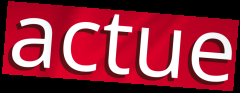
actue